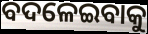
ବଦଳେଇବାକୁ